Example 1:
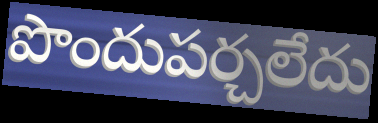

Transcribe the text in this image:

పొందుపర్చలేదు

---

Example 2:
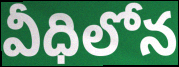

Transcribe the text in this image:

వీధిలోన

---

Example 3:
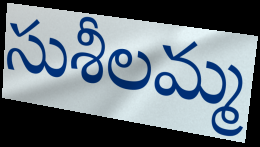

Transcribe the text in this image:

సుశీలమ్మ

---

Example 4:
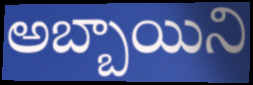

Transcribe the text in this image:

అబ్బాయిని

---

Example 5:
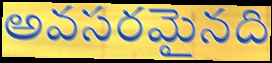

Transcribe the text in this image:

అవసరమైనది